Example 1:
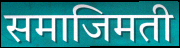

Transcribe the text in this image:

समाजिमती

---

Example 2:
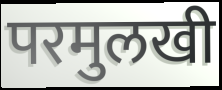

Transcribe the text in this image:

परमुलखी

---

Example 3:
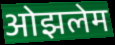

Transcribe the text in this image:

ओझलेम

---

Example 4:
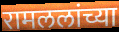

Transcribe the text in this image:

रामललांच्या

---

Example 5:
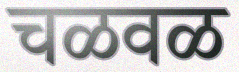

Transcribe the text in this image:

चळवळ